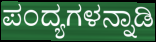
ಪಂದ್ಯಗಳನ್ನಾಡಿ